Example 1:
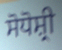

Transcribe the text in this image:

ਸੋਧੋਸ਼੍ਰੀ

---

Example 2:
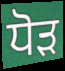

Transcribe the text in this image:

ਧੋੜ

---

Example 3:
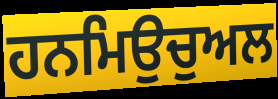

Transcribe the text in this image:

ਹਨਮਿਉਚੁਅਲ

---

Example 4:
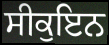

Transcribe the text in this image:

ਸੀਕੁਇਨ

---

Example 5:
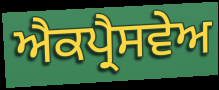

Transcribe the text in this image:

ਐਕਪ੍ਰੈਸਵੇਅ